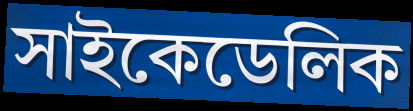
সাইকেডেলিক